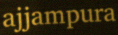
ajjampura